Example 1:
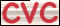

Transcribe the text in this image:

cvc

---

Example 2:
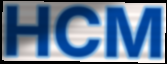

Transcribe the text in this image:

HCM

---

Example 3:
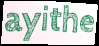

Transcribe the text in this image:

ayithe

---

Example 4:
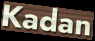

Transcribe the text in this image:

Kadan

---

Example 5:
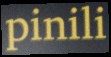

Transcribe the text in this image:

pinili